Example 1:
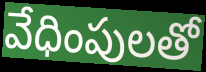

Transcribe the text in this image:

వేధింపులతో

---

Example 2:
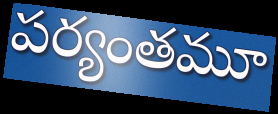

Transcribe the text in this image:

పర్యంతమూ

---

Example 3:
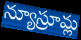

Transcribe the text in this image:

న్యూస్రూమ్ల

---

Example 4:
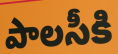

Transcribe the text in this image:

పాలసీకి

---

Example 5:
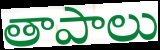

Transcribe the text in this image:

తాపాలు